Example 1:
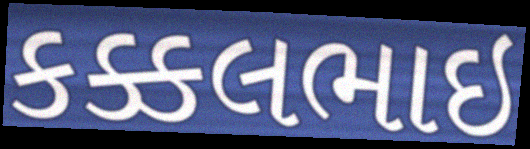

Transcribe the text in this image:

કક્કલભાઇ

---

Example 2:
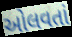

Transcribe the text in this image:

ઓલવતાં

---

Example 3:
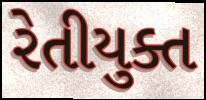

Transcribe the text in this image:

રેતીયુક્ત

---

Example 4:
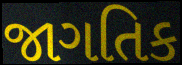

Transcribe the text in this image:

જાગતિક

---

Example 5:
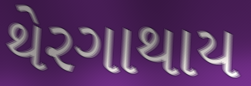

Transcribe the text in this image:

થેરગાથાય